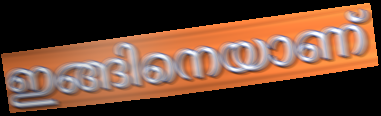
ഇങ്ങിനെയാണ്